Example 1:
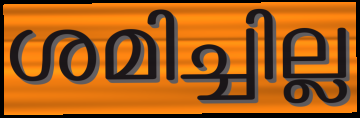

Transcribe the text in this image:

ശമിച്ചില്ല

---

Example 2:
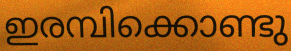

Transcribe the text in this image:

ഇരമ്പിക്കൊണ്ടു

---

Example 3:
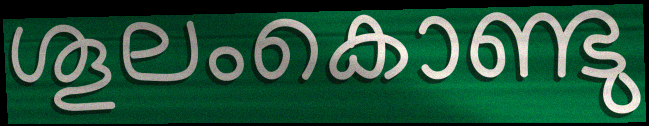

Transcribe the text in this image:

ശൂലംകൊണ്ടു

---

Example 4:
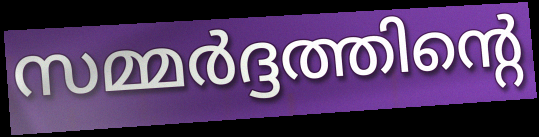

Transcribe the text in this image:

സമ്മർദ്ദത്തിന്റെ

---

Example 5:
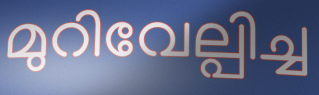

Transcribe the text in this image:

മുറിവേല്പിച്ച